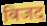
बिजद